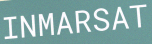
INMARSAT